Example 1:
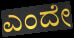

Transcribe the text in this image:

ಎಂದೇ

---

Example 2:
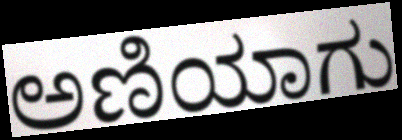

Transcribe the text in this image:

ಅಣಿಯಾಗು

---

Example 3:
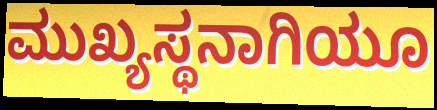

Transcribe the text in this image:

ಮುಖ್ಯಸ್ಥನಾಗಿಯೂ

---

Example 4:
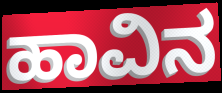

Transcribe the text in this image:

ಹಾವಿನ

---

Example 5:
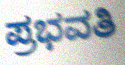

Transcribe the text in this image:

ಪ್ರಭವತಿ